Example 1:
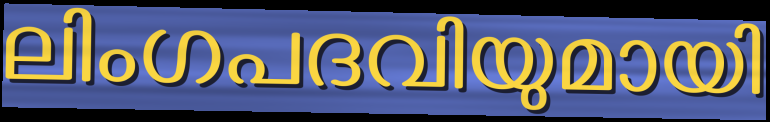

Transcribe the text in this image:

ലിംഗപദവിയുമായി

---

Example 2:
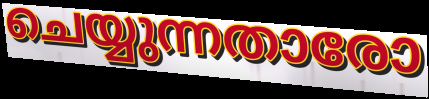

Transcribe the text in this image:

ചെയ്യുന്നതാരോ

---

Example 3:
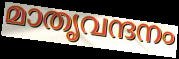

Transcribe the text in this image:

മാതൃവന്ദനം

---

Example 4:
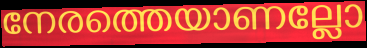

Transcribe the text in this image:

നേരത്തെയാണല്ലോ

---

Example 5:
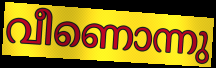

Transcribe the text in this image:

വീണൊന്നു